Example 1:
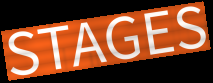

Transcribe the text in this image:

STAGES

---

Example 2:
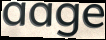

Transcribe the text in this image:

aage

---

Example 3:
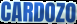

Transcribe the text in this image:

CARDOZO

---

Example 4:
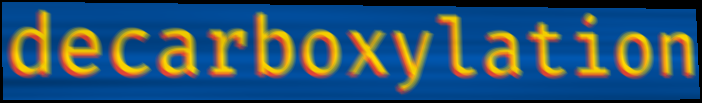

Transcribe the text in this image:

decarboxylation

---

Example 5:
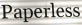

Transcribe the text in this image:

Paperless